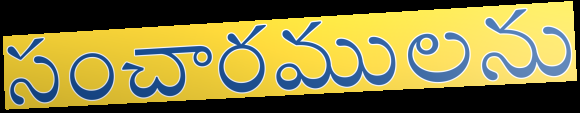
సంచారములను